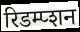
रिडम्प्शन